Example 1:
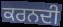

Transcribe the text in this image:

ਕਰਨਦੀ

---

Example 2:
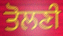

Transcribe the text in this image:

ਤੋਲਣੀ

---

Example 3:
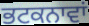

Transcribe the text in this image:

ਭਟਕਨਾਵਾਂ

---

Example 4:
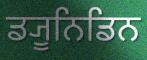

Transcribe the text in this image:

ਡ੍ਯੂਨਿਡਿਨ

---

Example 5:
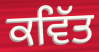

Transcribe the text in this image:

ਕਵਿੱਤ